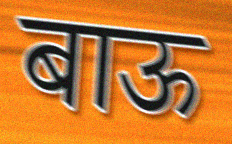
बाऊ